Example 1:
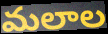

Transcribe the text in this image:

మలాల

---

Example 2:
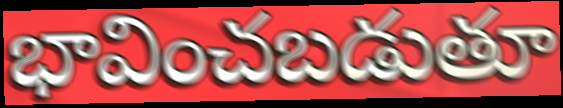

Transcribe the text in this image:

భావించబడుతూ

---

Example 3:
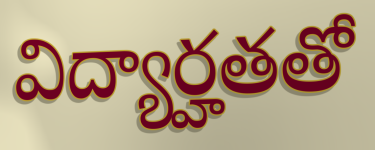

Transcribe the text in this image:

విద్యార్హతతో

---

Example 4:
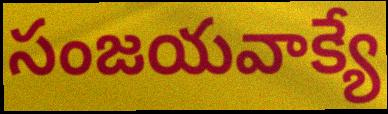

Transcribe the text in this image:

సంజయవాక్యే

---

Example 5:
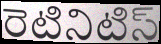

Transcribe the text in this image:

రెటినిటిస్